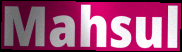
Mahsul